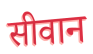
सीवान